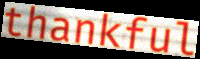
thankful